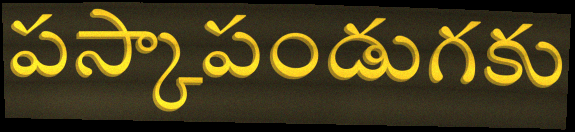
పస్కాపండుగకు